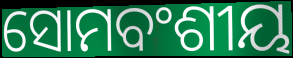
ସୋମବଂଶୀୟ